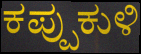
ಕಪ್ಪುಕುಳಿ